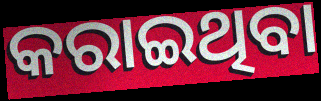
କରାଇଥିବା